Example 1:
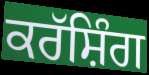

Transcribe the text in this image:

ਕਰੱਸ਼ਿੰਗ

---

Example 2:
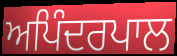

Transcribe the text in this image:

ਅਪਿੰਦਰਪਾਲ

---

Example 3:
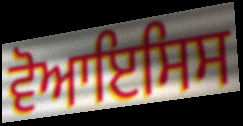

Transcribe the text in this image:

ਵੋਆਇਸਿਸ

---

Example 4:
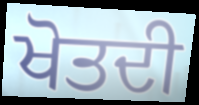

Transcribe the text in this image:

ਖੋਤਦੀ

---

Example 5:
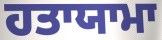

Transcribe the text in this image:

ਹਤਾਯਾਮਾ